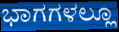
ಭಾಗಗಳಲ್ಲೂ